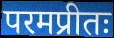
परमप्रीतः